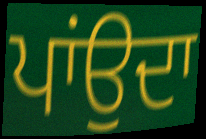
ਪਾਂਉਦਾ